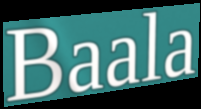
Baala